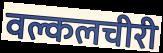
वल्कलचीरी